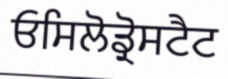
ਓਸਿਲੋਡ੍ਰੋਸਟੈਟ